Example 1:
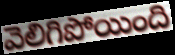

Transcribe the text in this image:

వెలిగిపోయింది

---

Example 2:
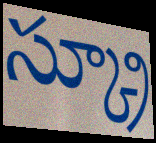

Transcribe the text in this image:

స్క్రూ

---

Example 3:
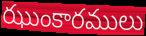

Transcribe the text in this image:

ఝుంకారములు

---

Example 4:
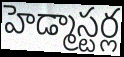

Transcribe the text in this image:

హెడ్మాస్టర్ల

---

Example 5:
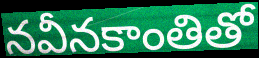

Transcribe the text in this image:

నవీనకాంతితో